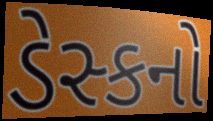
ડેસ્કનો